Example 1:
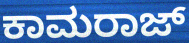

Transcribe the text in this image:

ಕಾಮರಾಜ್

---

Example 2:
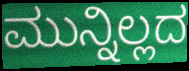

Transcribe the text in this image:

ಮುನ್ನಿಲ್ಲದ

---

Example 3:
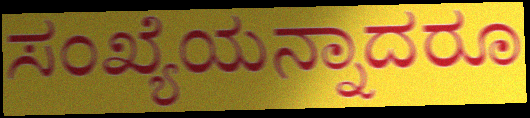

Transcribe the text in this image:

ಸಂಖ್ಯೆಯನ್ನಾದರೂ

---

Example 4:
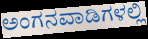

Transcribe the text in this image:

ಅಂಗನವಾಡಿಗಳಲ್ಲಿ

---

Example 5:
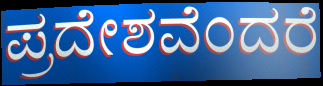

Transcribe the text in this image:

ಪ್ರದೇಶವೆಂದರೆ